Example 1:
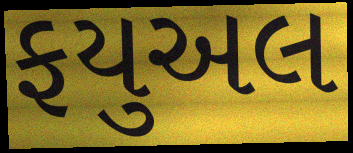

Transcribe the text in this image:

ફયુઅલ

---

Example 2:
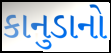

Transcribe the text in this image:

કાનુડાનો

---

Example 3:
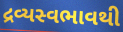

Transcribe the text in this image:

દ્રવ્યસ્વભાવથી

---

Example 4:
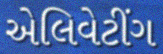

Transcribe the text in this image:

એલિવેટીંગ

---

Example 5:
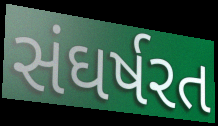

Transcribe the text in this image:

સંઘર્ષરત